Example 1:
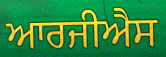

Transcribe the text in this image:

ਆਰਜੀਐਸ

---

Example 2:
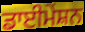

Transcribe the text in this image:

ਡਾਈਮੇਂਸ਼ਨ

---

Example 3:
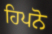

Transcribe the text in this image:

ਹਿਪਨੋ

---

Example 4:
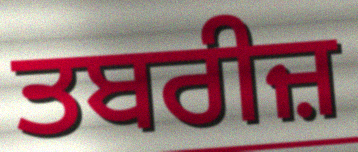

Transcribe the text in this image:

ਤਬਰੀਜ਼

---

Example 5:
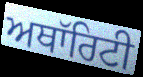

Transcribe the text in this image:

ਅਥਾੱਰਿਟੀ